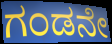
ಗಂಡನೇ